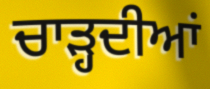
ਚਾੜ੍ਹਦੀਆਂ